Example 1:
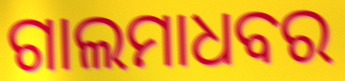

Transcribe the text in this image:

ଗାଲମାଧବର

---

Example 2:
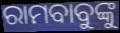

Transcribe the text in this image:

ରାମବାବୁଙ୍କୁ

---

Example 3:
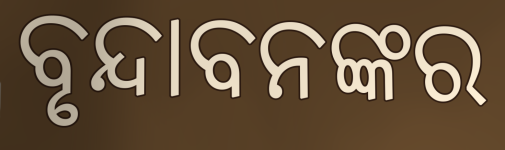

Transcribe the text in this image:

ବୃନ୍ଦାବନଙ୍କର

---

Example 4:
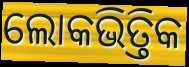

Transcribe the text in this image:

ଲୋକଭିତ୍ତିକ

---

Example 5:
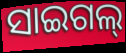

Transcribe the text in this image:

ସାଇଗଲ୍